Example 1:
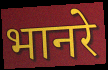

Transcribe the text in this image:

भानरे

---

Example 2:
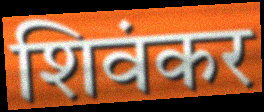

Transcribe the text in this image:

शिवंकर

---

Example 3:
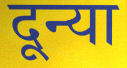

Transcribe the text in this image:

दून्या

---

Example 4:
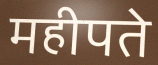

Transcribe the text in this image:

महीपते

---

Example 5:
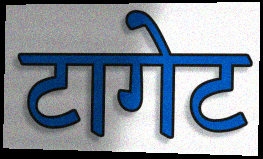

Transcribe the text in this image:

टागेट